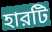
হারটি